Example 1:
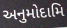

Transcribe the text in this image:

અનુમોદામિ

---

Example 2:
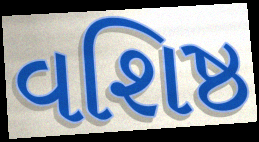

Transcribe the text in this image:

વશિષ્ઠ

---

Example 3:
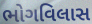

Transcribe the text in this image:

ભોગવિલાસ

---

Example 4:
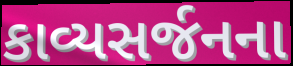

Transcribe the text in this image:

કાવ્યસર્જનના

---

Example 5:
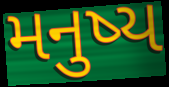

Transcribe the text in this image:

મનુષ્ય